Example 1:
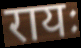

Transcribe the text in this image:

रायः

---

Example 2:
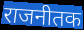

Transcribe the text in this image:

राजनीतक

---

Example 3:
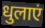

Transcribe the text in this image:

धुलाएं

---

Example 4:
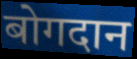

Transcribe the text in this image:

बोगदान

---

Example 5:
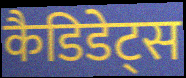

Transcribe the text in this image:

कैडिडेट्स